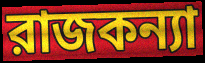
রাজকন্যা